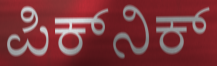
ಪಿಕ್‌ನಿಕ್